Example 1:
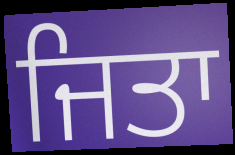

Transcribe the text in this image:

ਜਿਤਾ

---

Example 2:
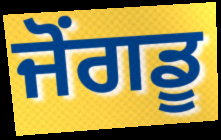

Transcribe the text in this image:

ਜੋਂਗਡੂ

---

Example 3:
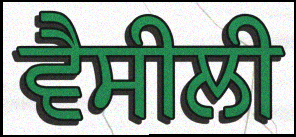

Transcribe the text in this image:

ਵੈਸੀਲੀ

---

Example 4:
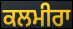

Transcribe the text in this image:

ਕਲਮੀਰਾ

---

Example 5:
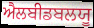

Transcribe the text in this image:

ਐਲਬੀਡਬਲਯੂ